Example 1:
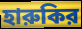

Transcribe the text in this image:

হারুকির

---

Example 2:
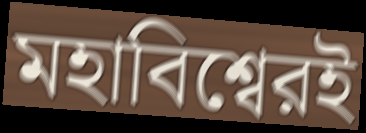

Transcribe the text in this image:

মহাবিশ্বেরই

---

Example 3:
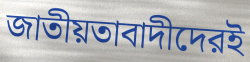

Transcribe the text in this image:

জাতীয়তাবাদীদেরই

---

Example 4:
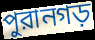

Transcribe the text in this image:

পুরানগড়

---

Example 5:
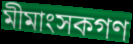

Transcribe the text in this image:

মীমাংসকগণ